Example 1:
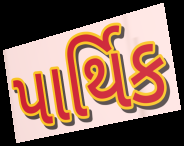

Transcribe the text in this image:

પાર્થિક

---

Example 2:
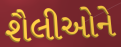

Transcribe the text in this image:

શૈલીઓને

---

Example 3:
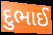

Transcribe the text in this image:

દુભાઈ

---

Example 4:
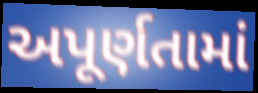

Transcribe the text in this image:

અપૂર્ણતામાં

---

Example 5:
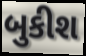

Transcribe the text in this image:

બુકીશ